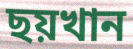
ছয়খান